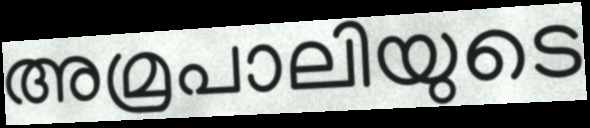
അമ്രപാലിയുടെ